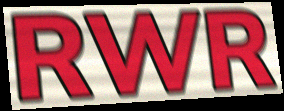
RWR